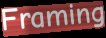
Framing